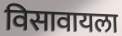
विसावायला